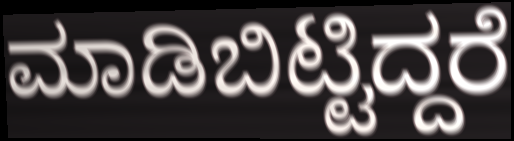
ಮಾಡಿಬಿಟ್ಟಿದ್ದರೆ